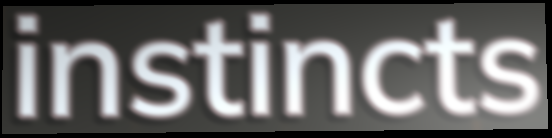
instincts